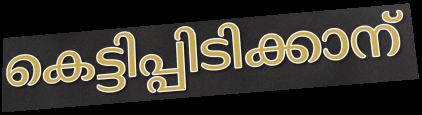
കെട്ടിപ്പിടിക്കാന്